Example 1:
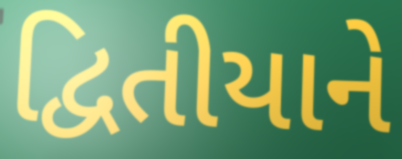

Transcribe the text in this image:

દ્વિતીયાને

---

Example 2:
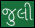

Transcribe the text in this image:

જુલી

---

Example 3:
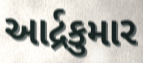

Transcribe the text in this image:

આર્દ્રકુમાર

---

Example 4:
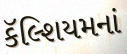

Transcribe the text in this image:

કૅલ્શિયમનાં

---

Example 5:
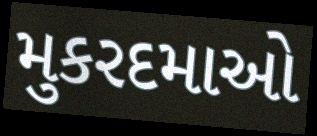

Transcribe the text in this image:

મુકરદમાઓ